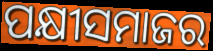
ପକ୍ଷୀସମାଜର